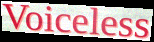
Voiceless